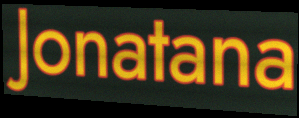
Jonatana